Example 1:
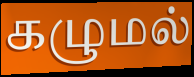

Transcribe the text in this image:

கழுமல்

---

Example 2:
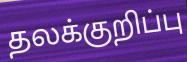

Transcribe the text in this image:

தலக்குறிப்பு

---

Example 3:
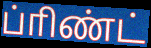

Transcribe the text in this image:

ப்ரிண்ட்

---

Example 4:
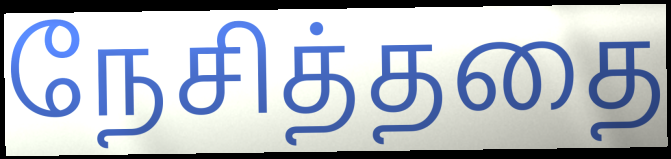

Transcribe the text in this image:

நேசித்ததை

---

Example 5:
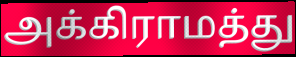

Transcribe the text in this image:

அக்கிராமத்து